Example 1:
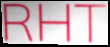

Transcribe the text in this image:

RHT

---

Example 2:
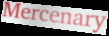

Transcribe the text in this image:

Mercenary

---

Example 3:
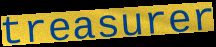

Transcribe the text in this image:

treasurer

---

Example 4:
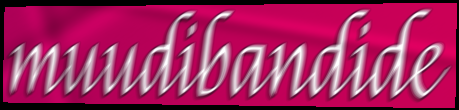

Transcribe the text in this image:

muudibandide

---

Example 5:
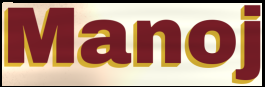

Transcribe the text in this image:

Manoj